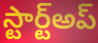
స్టార్ట్అప్